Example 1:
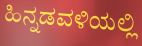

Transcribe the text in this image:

ಹಿನ್ನಡವಳಿಯಲ್ಲಿ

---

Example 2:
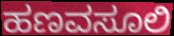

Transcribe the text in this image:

ಹಣವಸೂಲಿ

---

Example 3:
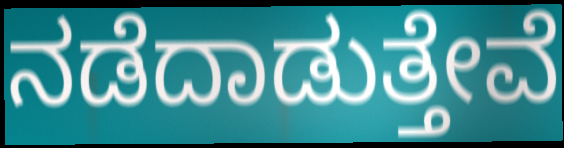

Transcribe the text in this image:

ನಡೆದಾಡುತ್ತೇವೆ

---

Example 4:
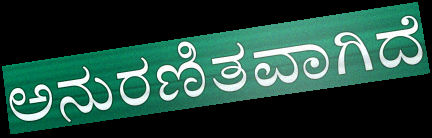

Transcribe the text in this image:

ಅನುರಣಿತವಾಗಿದೆ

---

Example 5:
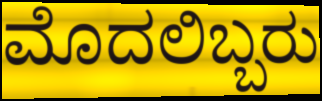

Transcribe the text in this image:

ಮೊದಲಿಬ್ಬರು